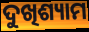
ଦୁଖିଶ୍ୟାମ